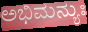
ಅಭಿಮನ್ಯುಃ